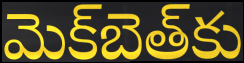
మెక్‌బెత్‌కు